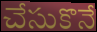
చేసుకొనే